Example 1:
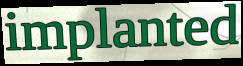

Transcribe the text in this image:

implanted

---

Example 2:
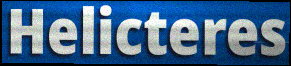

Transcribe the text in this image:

Helicteres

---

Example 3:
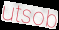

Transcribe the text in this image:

utsob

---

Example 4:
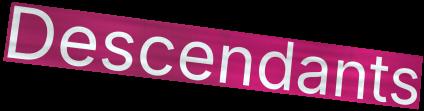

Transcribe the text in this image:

Descendants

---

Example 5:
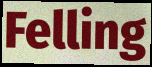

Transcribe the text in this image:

Felling